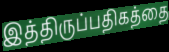
இத்திருப்பதிகத்தை